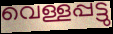
വെള്ളപ്പട്ടു